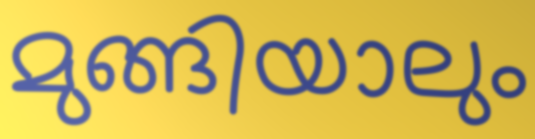
മുങ്ങിയാലും